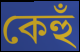
কেহুঁ